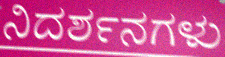
ನಿದರ್ಶನಗಳು